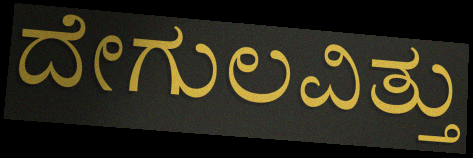
ದೇಗುಲವಿತ್ತು